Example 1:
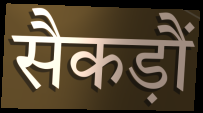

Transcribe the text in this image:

सैकड़ौं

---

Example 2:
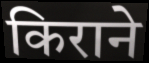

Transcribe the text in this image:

किराने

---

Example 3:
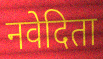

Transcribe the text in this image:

नवेदिता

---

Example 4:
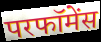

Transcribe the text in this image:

परफॉमेंस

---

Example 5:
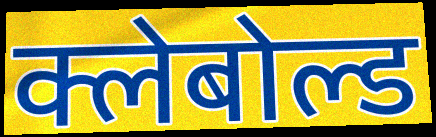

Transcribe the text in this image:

क्लेबोल्ड